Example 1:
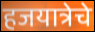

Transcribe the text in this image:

हजयात्रेचे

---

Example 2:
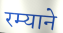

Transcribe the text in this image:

रम्याने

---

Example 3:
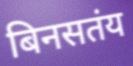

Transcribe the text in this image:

बिनसतंय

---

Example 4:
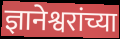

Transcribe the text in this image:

ज्ञानेश्वरांच्या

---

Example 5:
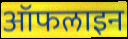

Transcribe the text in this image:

ऑफलाइन